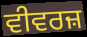
ਵੀਵਰਜ਼